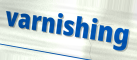
varnishing